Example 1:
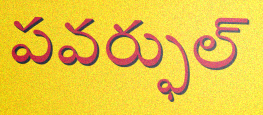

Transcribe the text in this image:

పవర్ఫుల్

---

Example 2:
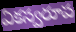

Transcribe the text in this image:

ఏకస్వరూప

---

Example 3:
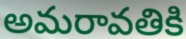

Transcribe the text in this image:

అమరావతికి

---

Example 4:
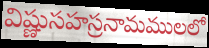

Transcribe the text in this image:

విష్ణుసహస్రనామములలో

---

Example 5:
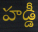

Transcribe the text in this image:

హడ్డీ